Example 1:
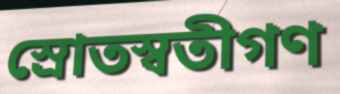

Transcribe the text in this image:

স্রোতস্বতীগণ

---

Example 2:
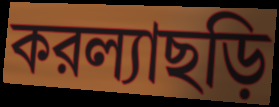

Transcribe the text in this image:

করল্যাছড়ি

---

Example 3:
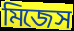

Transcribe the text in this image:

মিজেস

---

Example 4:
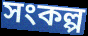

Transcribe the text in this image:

সংকল্প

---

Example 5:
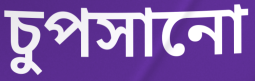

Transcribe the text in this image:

চুপসানো